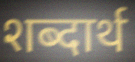
शब्दार्थ